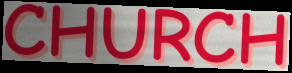
CHURCH